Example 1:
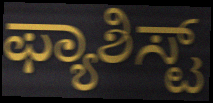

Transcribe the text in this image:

ಫ್ಯಾಶಿಸ್ಟ್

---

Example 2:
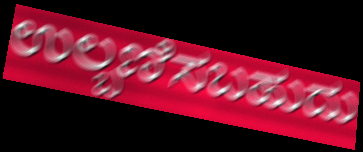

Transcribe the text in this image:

ಉಲ್ಬಣಿಸಬಹುದು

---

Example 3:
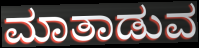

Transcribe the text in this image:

ಮಾತಾಡುವ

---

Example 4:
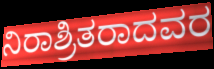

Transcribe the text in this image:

ನಿರಾಶ್ರಿತರಾದವರ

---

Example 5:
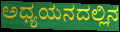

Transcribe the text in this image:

ಅಧ್ಯಯನದಲ್ಲಿನ